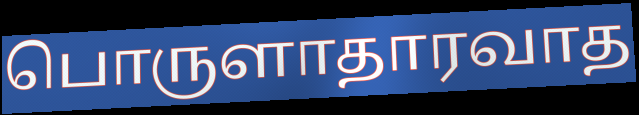
பொருளாதாரவாத